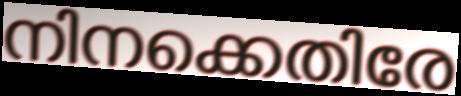
നിനക്കെതിരേ